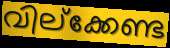
വില്ക്കേണ്ട